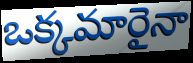
ఒక్కమారైనా